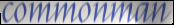
commonman